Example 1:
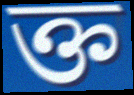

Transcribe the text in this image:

ক্ত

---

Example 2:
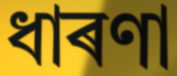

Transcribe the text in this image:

ধাৰণা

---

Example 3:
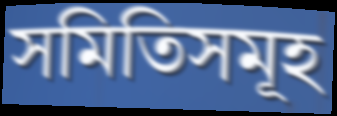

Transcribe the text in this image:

সমিতিসমূহ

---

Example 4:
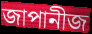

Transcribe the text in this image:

জাপানীজ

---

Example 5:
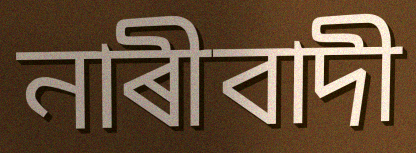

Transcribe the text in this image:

নাৰীবাদী